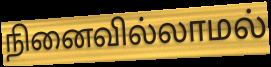
நினைவில்லாமல்